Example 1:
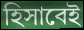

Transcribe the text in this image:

হিসাবেই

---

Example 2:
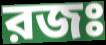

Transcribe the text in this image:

রজঃ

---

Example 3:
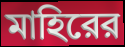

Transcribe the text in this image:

মাহিরের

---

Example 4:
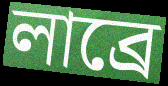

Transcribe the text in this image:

লাব্রে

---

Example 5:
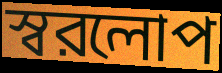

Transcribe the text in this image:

স্বরলোপ